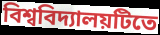
বিশ্ববিদ্যালয়টিতে